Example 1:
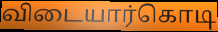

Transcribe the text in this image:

விடையார்கொடி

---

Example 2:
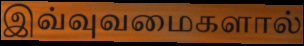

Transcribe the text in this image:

இவ்வுவமைகளால்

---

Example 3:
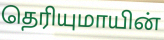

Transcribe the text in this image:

தெரியுமாயின்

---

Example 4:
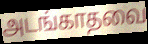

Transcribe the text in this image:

அடங்காதவை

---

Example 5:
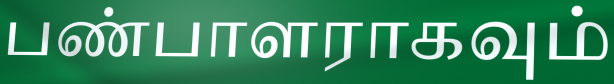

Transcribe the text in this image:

பண்பாளராகவும்